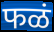
फळं